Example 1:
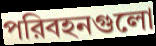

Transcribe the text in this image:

পরিবহনগুলো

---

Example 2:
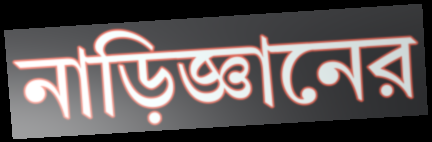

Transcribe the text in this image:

নাড়িজ্ঞানের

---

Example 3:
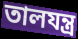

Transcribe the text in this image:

তালযন্ত্র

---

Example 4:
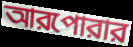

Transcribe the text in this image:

আরপোরার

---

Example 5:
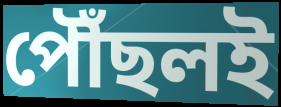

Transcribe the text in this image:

পৌঁছলই